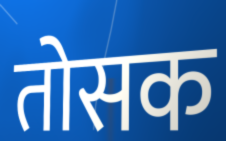
तोसक